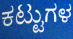
ಕಟ್ಟುಗಳ